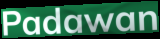
Padawan